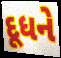
દૂધને